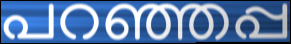
പറഞ്ഞപ്പ